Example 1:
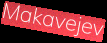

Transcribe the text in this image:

Makavejev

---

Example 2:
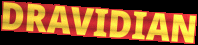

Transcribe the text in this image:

DRAVIDIAN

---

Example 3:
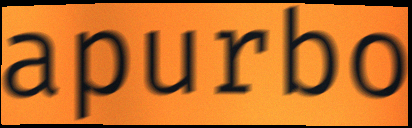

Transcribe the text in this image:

apurbo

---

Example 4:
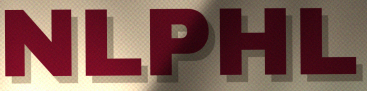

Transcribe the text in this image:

NLPHL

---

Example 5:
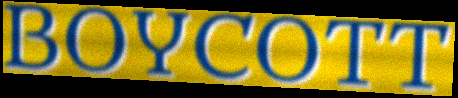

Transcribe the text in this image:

BOYCOTT